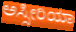
ಅಸ್ಸೀರಿಯಾ